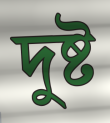
দুষ্ট